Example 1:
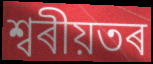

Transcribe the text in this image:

শ্বৰীয়তৰ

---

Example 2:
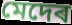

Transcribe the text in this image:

মেদেৰ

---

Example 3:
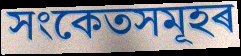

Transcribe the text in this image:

সংকেতসমূহৰ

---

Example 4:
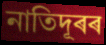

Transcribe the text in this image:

নাতিদূৰৰ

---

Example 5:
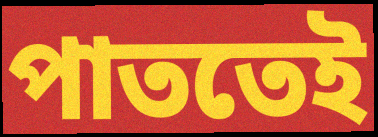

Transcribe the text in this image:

পাততেই